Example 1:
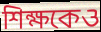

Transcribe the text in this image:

শিক্ষকেও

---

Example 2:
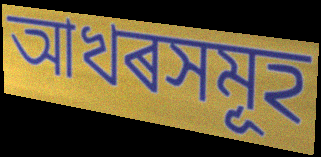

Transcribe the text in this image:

আখৰসমূহ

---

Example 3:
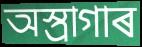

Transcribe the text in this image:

অস্ত্ৰাগাৰ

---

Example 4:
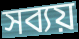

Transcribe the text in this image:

সব্যয়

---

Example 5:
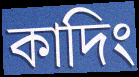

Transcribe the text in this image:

কাদিং